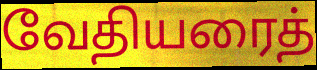
வேதியரைத்